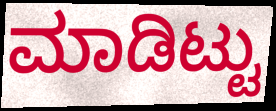
ಮಾಡಿಟ್ಟು